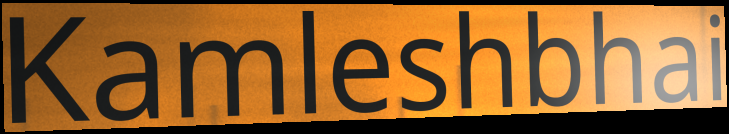
Kamleshbhai